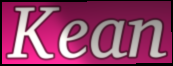
Kean